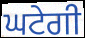
ਘਟੇਗੀ